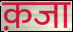
क़जा